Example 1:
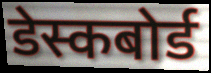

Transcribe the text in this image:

डेस्कबोर्ड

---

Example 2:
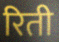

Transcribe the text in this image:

रिती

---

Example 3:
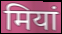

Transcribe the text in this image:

मियां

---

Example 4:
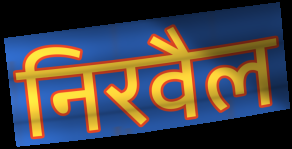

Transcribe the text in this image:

निरवैल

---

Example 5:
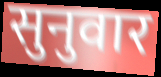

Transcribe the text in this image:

सुनुवार